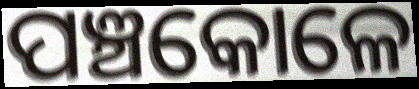
ପଞ୍ଚକୋଳେ